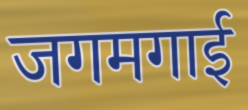
जगमगाई